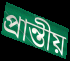
প্রান্তীয়